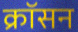
क्रॉसन